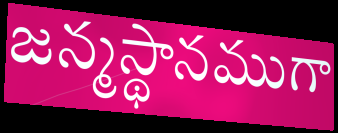
జన్మస్థానముగా